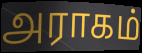
அராகம்